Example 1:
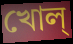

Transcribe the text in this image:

খোল্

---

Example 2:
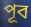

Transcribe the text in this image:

পূব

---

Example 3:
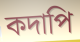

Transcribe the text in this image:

কদাপি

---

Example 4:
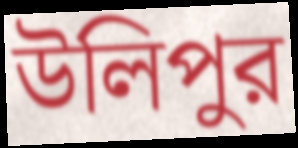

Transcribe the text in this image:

উলিপুর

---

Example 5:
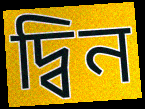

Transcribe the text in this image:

দ্বিন